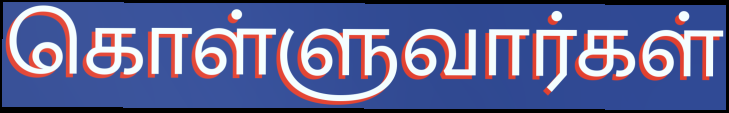
கொள்ளுவார்கள்